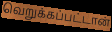
வெறுக்கப்பட்டான்